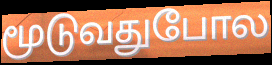
மூடுவதுபோல